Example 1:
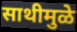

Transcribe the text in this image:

साथीमुळे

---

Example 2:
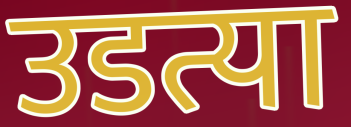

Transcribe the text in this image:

उडत्या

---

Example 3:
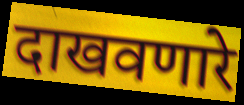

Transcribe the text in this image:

दाखवणारे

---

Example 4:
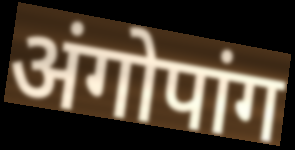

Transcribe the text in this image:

अंगोपांग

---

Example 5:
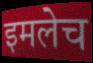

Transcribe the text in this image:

इमलेच